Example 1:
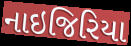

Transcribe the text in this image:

નાઇજિરિયા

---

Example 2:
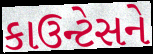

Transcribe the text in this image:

કાઉન્ટેસને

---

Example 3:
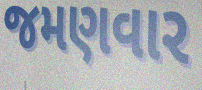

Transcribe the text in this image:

જમણવાર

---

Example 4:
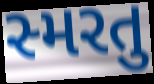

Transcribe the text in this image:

સ્મરતુ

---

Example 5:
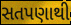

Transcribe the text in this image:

સતપણાથી